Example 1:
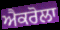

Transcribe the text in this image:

ਐਕਰੋਲਾ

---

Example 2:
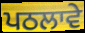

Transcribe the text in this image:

ਪਠਲਾਵੇ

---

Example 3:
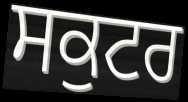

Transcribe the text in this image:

ਸਕੁਟਰ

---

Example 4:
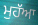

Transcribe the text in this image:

ਮੁਹੱਆ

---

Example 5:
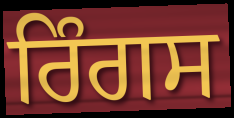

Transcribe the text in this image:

ਰਿੰਗਸ